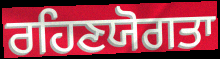
ਰਹਿਣਯੋਗਤਾ